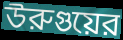
উরুগুয়ের